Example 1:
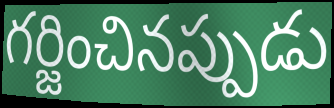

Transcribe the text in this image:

గర్జించినప్పుడు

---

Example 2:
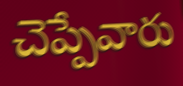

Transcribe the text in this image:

చెప్పేవారు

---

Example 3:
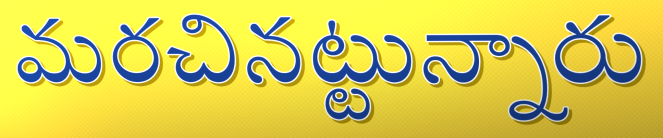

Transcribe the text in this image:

మరచినట్టున్నారు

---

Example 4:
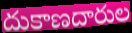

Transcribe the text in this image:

దుకాణదారుల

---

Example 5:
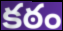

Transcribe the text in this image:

కఠం